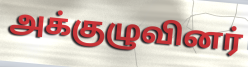
அக்குழுவினர்